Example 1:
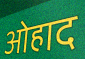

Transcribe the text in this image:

ओहाद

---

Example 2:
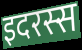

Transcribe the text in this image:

इदरस्स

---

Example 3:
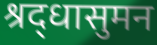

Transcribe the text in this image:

श्रद्धासुमन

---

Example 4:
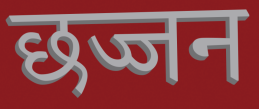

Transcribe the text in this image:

छज्जन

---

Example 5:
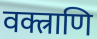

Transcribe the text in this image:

वक्त्राणि